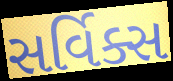
સર્વિક્સ